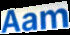
Aam